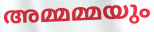
അമ്മമ്മയും